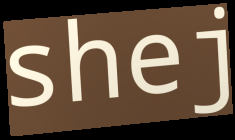
shej